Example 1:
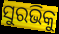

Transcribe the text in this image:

ସୁରଭିକୁ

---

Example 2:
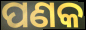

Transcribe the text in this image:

ପଣକ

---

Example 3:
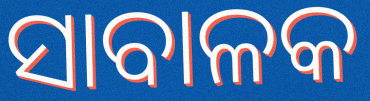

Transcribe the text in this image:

ସାବାଳକ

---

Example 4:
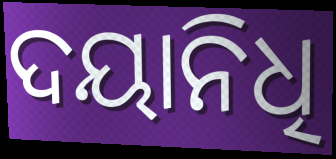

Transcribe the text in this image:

ଦୟାନିଧି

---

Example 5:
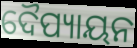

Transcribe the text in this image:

ଦୈପ୍ୟାୟନ